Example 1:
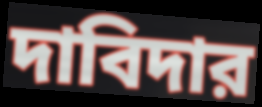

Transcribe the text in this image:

দাবিদার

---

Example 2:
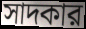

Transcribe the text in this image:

সাদকার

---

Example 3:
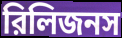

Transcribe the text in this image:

রিলিজনস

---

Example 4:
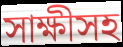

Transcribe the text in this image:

সাক্ষীসহ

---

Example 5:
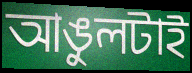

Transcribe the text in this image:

আঙুলটাই